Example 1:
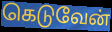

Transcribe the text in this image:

கெடுவேன்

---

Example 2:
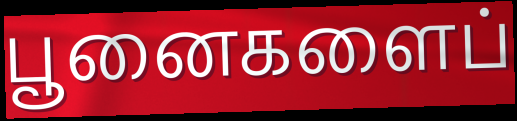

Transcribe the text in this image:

பூனைகளைப்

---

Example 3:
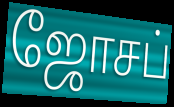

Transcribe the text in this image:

ஜோசப்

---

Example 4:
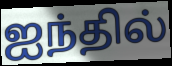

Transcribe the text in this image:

ஐந்தில்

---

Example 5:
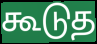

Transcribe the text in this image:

கூடுத